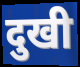
दुखी